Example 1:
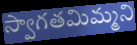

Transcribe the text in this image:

స్వాగతమిమ్మని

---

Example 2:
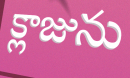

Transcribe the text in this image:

క్లాజును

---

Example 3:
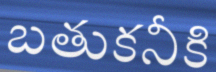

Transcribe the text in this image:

బతుకనీకి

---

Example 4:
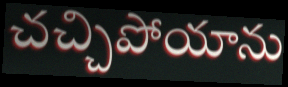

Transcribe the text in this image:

చచ్చిపోయాను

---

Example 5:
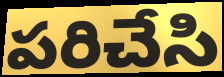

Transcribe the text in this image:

పరిచేసి